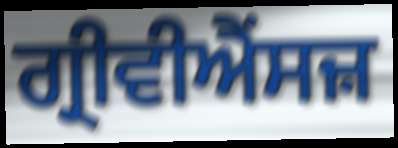
ਗ੍ਰੀਵੀਐਂਸਜ਼